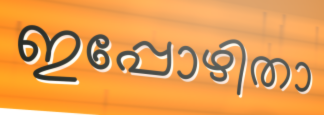
ഇപ്പോഴിതാ